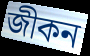
জীকন